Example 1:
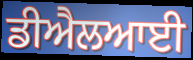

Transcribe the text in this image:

ਡੀਐਲਆਈ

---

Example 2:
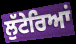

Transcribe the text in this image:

ਲੁੱਟੇਰਿਆਂ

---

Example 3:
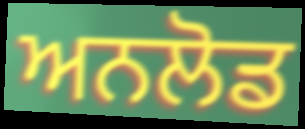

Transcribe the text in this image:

ਅਨਲੋਡ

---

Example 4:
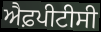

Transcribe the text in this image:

ਐਫ਼ਪੀਟੀਸੀ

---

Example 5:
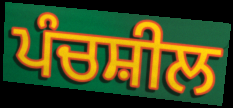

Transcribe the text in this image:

ਪੰਚਸ਼ੀਲ